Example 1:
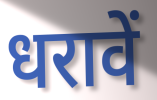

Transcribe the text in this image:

धरावें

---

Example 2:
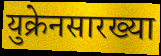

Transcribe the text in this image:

युक्रेनसारख्या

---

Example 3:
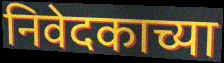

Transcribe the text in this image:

निवेदकाच्या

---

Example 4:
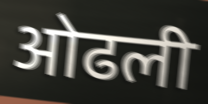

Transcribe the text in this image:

ओढली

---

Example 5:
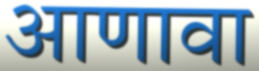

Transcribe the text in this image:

आणावा